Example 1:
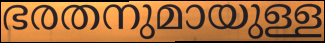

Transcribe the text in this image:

ഭരതനുമായുള്ള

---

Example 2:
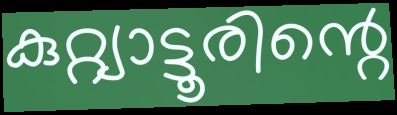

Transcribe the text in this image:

കുറ്റ്യാട്ടൂരിന്റെ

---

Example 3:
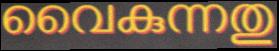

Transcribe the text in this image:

വൈകുന്നതു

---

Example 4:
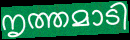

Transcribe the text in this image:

നൃത്തമാടി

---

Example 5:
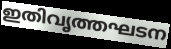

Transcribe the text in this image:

ഇതിവൃത്തഘടന